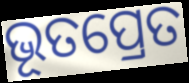
ଭୂତପ୍ରେତ